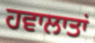
ਹਵਾਲਾਤਾਂ